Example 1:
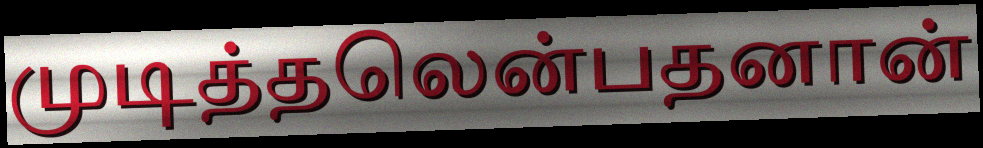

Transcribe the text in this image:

முடித்தலென்பதனான்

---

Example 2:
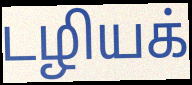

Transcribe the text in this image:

டழியக்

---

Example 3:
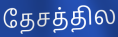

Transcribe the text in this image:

தேசத்தில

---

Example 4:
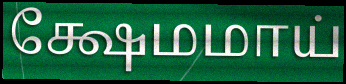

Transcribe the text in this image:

க்ஷேமமாய்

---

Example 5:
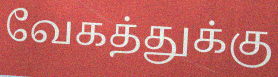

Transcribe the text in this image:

வேகத்துக்கு